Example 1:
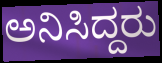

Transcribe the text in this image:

ಅನಿಸಿದ್ದರು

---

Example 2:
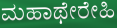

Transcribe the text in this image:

ಮಹಾಥೇರೇಹಿ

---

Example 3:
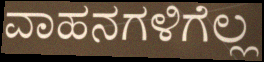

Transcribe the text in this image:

ವಾಹನಗಳಿಗೆಲ್ಲ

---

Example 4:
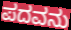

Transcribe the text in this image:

ಪದವನು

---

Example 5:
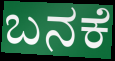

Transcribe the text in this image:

ಬನಕೆ